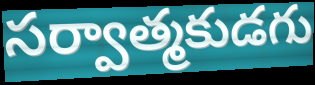
సర్వాత్మకుడగు